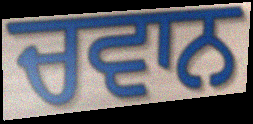
ਚਵਾਨ